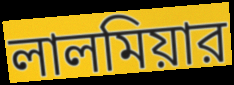
লালমিয়ার